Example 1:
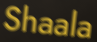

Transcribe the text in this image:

Shaala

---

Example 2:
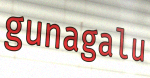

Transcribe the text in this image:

gunagalu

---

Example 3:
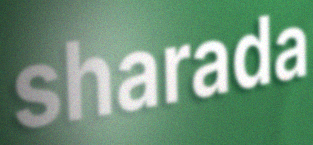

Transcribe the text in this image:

sharada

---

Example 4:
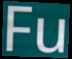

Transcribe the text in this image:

Fu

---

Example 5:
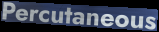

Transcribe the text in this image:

Percutaneous